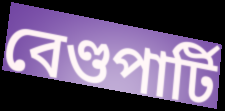
বেণ্ডপাৰ্টি